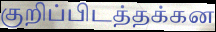
குறிப்பிடத்தக்கன